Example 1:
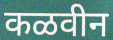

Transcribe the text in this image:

कळवीन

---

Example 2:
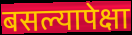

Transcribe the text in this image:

बसल्यापेक्षा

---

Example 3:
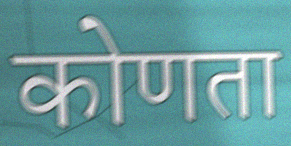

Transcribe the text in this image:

कोणता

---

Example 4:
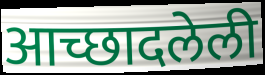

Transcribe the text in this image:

आच्छादलेली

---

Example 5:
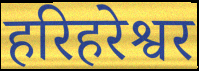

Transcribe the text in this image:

हरिहरेश्वर